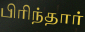
பிரிந்தார்